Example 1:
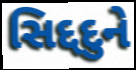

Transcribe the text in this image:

સિદ્દદુને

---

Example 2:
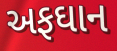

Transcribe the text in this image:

અફઘાન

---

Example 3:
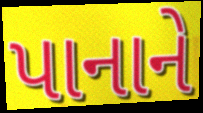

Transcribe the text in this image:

પાનાને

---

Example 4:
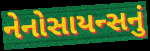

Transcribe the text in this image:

નેનોસાયન્સનું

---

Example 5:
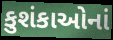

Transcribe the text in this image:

કુશંકાઓનાં